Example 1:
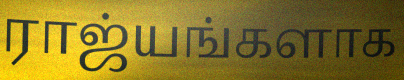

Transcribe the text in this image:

ராஜ்யங்களாக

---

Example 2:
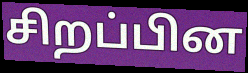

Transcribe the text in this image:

சிறப்பின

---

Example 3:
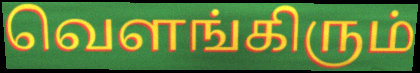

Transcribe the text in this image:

வெளங்கிரும்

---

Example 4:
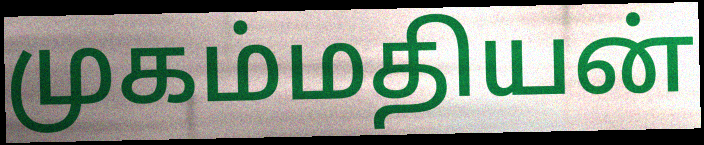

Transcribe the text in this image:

முகம்மதியன்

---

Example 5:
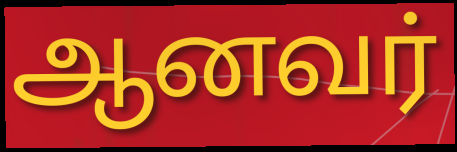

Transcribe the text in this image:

ஆனவர்